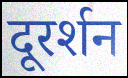
दूरर्शन